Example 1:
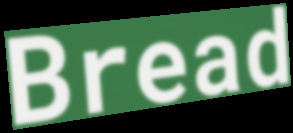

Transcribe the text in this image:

Bread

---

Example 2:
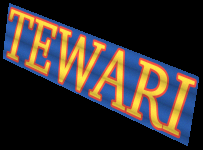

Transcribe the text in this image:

TEWARI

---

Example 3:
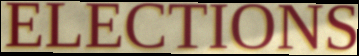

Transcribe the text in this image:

ELECTIONS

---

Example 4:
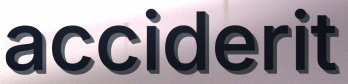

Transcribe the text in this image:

acciderit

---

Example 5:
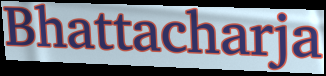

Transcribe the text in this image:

Bhattacharja